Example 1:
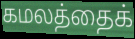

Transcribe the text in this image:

கமலத்தைக்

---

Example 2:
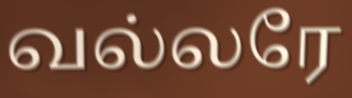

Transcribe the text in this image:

வல்லரே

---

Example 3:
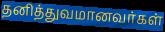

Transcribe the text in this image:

தனித்துவமானவர்கள்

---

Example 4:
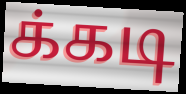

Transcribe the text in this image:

க்கடி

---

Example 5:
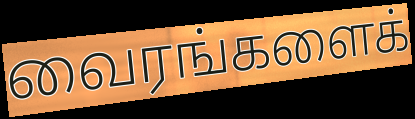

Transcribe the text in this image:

வைரங்களைக்